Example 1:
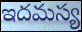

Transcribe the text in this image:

ఇదమస్య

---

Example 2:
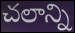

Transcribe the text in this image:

చలాన్ని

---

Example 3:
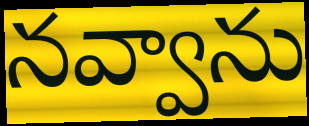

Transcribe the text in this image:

నవ్వాను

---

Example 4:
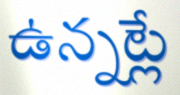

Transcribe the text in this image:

ఉన్నట్లే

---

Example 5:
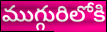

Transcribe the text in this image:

ముగ్గురిలోకి